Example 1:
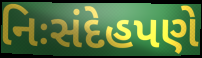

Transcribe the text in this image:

નિઃસંદેહપણે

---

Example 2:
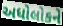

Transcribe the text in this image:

અધોલોકને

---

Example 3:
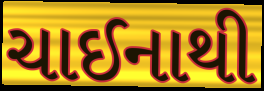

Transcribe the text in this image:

ચાઈનાથી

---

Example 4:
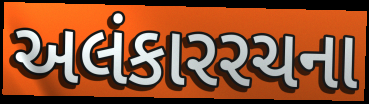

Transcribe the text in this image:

અલંકારરચના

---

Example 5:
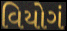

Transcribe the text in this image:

વિયોગં